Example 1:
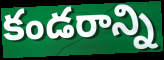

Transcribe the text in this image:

కండరాన్ని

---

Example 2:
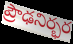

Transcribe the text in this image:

ప్రౌఢనిర్భర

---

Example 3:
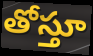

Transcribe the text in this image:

తోస్తూ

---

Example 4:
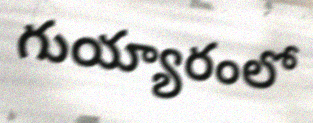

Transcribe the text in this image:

గుయ్యారంలో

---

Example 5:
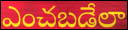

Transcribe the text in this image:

ఎంచబడేలా